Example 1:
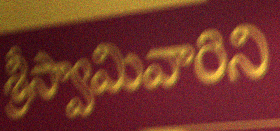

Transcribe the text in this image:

శ్రీస్వామివారిని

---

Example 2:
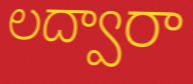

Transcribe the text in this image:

లద్వారా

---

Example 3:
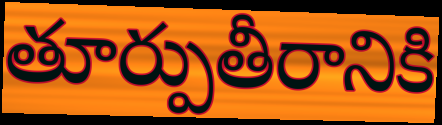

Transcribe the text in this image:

తూర్పుతీరానికి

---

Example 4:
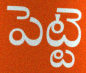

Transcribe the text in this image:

పెట్టె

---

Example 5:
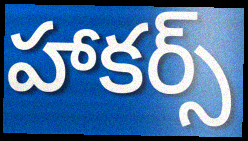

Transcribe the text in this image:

హాకర్స్